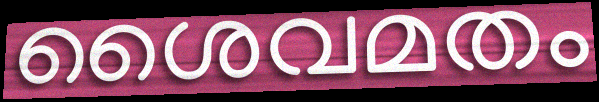
ശൈവമതം